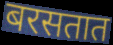
बरसतात